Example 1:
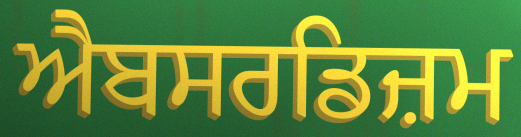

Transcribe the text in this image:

ਐਬਸਰਡਿਜ਼ਮ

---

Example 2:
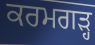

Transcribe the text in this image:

ਕਰਮਗੜ੍ਹ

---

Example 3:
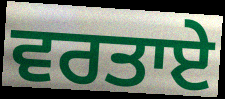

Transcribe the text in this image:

ਵਰਤਾਏ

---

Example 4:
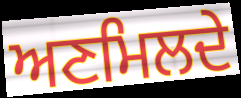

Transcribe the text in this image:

ਅਣਮਿਲਦੇ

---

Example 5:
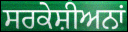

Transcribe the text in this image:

ਸਰਕੇਸ਼ੀਅਨਾਂ